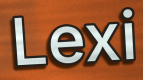
Lexi